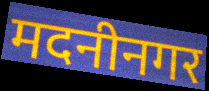
मदनीनगर